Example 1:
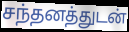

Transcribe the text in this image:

சந்தனத்துடன்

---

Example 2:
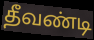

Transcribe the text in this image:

தீவண்டி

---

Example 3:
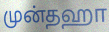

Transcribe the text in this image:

முன்தஹா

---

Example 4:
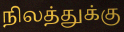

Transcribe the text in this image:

நிலத்துக்கு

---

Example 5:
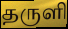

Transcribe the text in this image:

தருளி